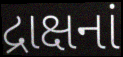
દ્રાક્ષનાં